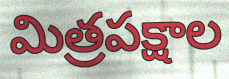
మిత్రపక్షాల